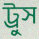
ট্রুস